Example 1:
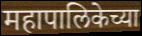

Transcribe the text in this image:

महापालिकेच्या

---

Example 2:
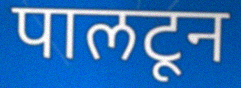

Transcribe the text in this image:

पालटून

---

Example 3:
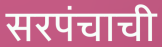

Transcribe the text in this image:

सरपंचाची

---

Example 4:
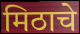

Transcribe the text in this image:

मिठाचे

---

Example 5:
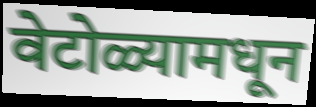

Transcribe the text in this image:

वेटोळ्यामधून